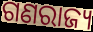
ଗଣରାଜ୍ୟ